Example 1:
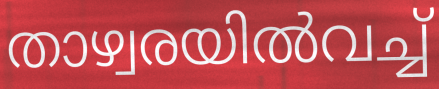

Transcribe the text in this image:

താഴ്വരയിൽവച്ച്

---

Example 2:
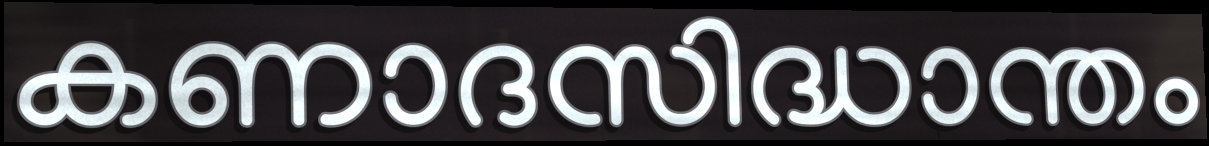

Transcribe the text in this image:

കണാദസിദ്ധാന്തം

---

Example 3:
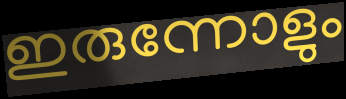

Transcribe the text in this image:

ഇരുന്നോളും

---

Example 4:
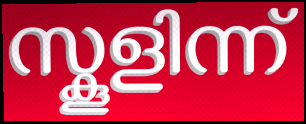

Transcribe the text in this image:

സ്കൂളിന്ന്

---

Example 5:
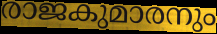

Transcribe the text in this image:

രാജകുമാരനും